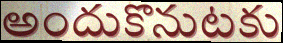
అందుకొనుటకు